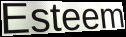
Esteem